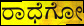
ರಾಧೆಗೋ